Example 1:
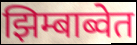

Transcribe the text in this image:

झिम्बाब्वेत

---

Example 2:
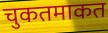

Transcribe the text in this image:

चुकतमाकत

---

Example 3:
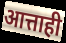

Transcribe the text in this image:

आत्ताही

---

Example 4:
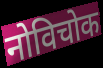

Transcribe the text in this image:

नोविचोक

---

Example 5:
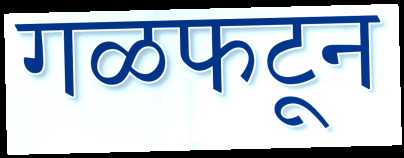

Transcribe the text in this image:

गळफटून